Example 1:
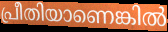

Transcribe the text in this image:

പ്രീതിയാണെങ്കിൽ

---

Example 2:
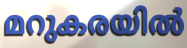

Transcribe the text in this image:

മറുകരയിൽ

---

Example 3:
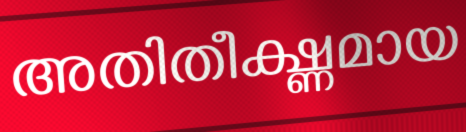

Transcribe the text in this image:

അതിതീക്ഷ്ണമായ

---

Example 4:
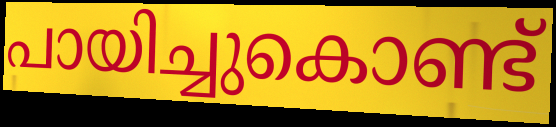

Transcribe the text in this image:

പായിച്ചുകൊണ്ട്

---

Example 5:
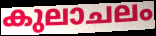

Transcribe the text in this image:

കുലാചലം